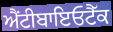
ਐਂਟੀਬਾਇਓਟੈੱਕ